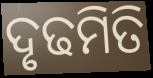
ଦୃଢମିତି